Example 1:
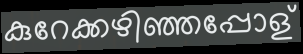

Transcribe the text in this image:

കുറേക്കഴിഞ്ഞപ്പോള്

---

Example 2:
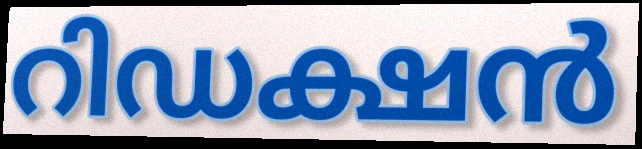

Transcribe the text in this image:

റിഡക്ഷൻ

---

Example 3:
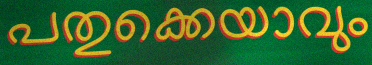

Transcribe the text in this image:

പതുക്കെയാവും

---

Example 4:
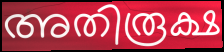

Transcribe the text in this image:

അതിരൂക്ഷ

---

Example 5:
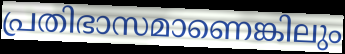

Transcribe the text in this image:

പ്രതിഭാസമാണെങ്കിലും